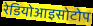
रेडियोआइसोटोप